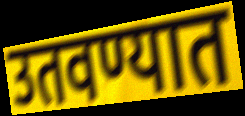
उतवण्यात